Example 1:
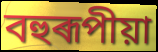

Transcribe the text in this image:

বহুৰূপীয়া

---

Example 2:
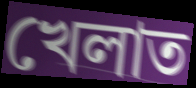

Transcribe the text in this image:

খেলাত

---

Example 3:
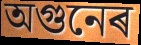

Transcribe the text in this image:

অগুনেৰ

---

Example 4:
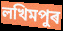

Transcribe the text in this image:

লখিমপুৰ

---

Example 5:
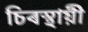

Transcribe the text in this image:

চিৰস্থায়ী